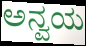
ಅನ್ವಯ